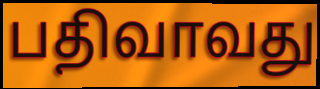
பதிவாவது